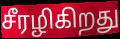
சீரழிகிறது